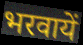
भरवायें